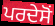
ਪਰਦੇਸੋਂ